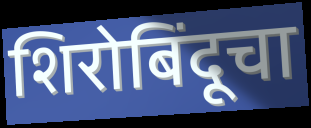
शिरोबिंदूचा